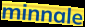
minnale